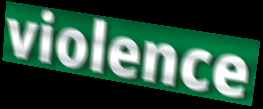
violence